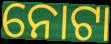
ନୋଟା